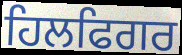
ਹਿਲਫਿਗਰ